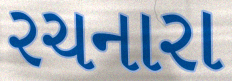
રચનારા